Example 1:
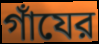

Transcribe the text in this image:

গাঁযের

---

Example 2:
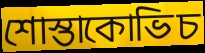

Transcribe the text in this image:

শোস্তাকোভিচ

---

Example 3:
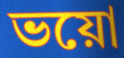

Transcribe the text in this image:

ভয়ো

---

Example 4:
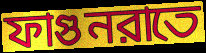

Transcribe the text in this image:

ফাগুনরাতে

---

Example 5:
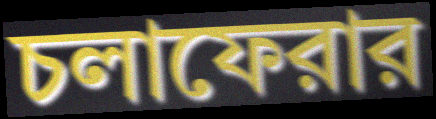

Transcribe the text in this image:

চলাফেরার